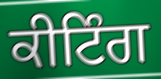
ਕੀਟਿੰਗ